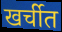
खर्चीत